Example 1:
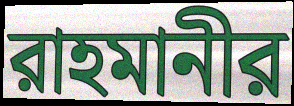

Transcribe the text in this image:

রাহমানীর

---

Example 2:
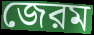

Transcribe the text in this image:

জেরম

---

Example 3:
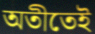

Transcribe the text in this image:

অতীতেই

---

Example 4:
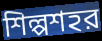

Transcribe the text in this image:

শিল্পশহর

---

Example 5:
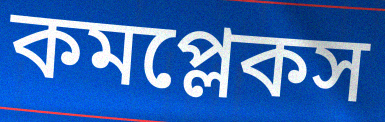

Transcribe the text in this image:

কমপ্লেকস